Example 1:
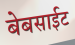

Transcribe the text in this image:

बेबसाईट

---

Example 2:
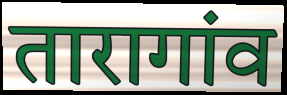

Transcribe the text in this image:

तारागांव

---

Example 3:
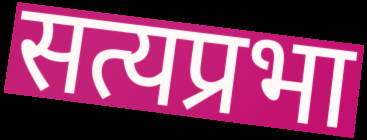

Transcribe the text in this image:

सत्यप्रभा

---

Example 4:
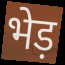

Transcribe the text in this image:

भेड़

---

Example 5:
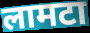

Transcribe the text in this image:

लामटा